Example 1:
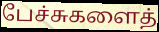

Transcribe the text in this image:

பேச்சுகளைத்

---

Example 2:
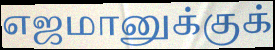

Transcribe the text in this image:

எஜமானுக்குக்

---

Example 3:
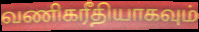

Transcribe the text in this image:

வணிகரீதியாகவும்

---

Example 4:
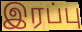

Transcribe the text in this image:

இரப்பு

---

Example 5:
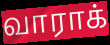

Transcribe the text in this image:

வாராக்